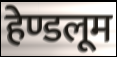
हेण्डलूम